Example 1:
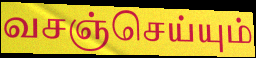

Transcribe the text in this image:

வசஞ்செய்யும்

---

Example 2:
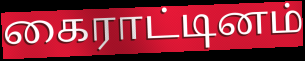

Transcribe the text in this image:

கைராட்டினம்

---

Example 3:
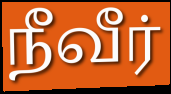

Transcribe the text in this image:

நீவீர்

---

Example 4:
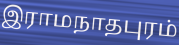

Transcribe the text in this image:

இராமநாதபுரம்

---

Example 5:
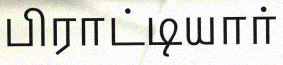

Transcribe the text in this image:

பிராட்டியார்